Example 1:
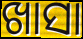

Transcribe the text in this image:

ଖାସା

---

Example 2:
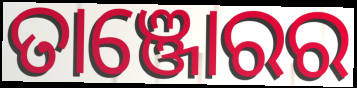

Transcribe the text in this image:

ତାଞ୍ଜୋରର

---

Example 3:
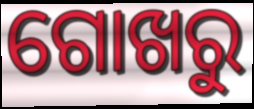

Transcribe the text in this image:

ଗୋଖରୁ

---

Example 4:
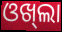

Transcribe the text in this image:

ଓଖ୍‌ଲା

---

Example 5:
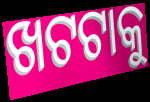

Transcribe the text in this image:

ଖଟଟାକୁ